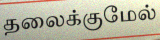
தலைக்குமேல்